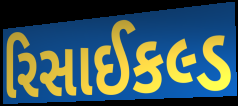
રિસાઈકલ્ડ